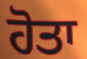
ਹੋਤਾ